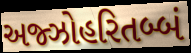
અજ્ઝોહરિતબ્બં